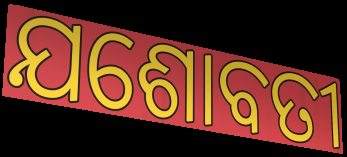
ଯଶୋବତୀ